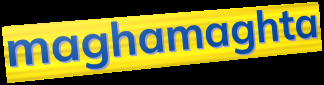
maghamaghta